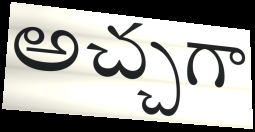
అచ్చగా